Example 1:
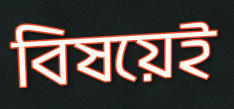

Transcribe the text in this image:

বিষয়েই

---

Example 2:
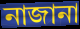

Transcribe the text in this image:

নাজানা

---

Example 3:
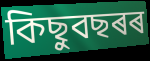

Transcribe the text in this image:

কিছুবছৰৰ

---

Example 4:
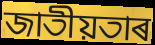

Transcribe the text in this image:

জাতীয়তাৰ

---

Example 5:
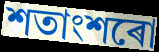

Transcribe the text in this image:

শতাংশৰো